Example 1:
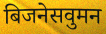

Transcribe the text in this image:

बिजनेसवुमन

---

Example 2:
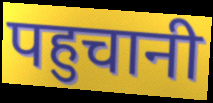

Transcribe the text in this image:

पहुचानी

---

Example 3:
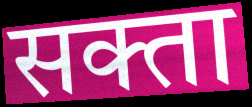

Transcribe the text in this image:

सक्ता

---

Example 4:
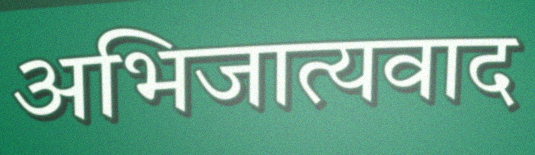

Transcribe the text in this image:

अभिजात्यवाद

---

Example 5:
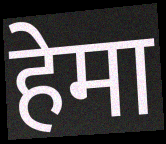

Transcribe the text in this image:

हेमा